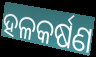
ହଳକର୍ଷଣ